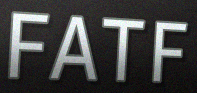
FATF